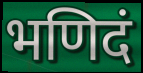
भणिदं